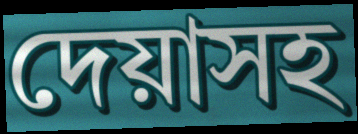
দেয়াসহ